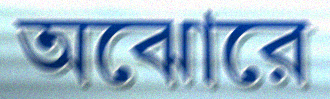
অঝোরে